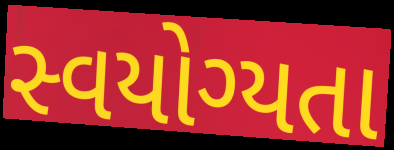
સ્વયોગ્યતા